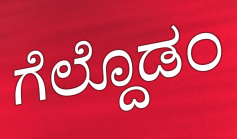
ಗೆಲ್ದೊಡಂ